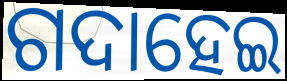
ଗଦାହେଇ